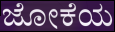
ಜೋಕೆಯ